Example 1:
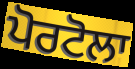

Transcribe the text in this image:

ਪੋਰਟੋਲਾ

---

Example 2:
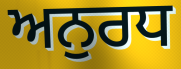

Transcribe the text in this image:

ਅਨੁਰਧ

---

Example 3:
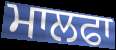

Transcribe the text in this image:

ਮਾਲਫਾ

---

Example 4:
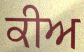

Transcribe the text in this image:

ਕੀਅ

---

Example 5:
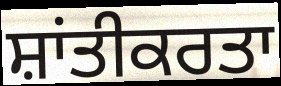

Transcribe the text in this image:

ਸ਼ਾਂਤੀਕਰਤਾ